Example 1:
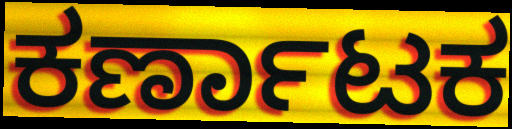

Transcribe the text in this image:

ಕರ್ಣಾಟಕ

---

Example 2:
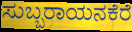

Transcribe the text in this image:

ಸುಬ್ಬರಾಯನಕೆರೆ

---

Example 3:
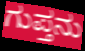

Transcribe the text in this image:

ಗುಪ್ತನು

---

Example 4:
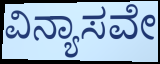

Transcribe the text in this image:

ವಿನ್ಯಾಸವೇ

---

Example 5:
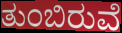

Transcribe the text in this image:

ತುಂಬಿರುವೆ